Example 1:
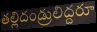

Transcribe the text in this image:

తల్లిదండ్రులిద్దరూ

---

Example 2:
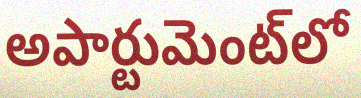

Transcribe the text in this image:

అపార్టుమెంట్‌లో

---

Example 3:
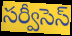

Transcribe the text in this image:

సర్వీసెస్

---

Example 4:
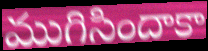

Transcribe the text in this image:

ముగిసిందాకా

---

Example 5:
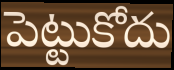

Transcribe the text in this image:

పెట్టుకోదు